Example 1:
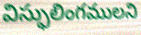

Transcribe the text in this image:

విస్ఫులింగములని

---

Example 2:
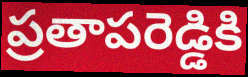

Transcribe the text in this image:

ప్రతాపరెడ్డికి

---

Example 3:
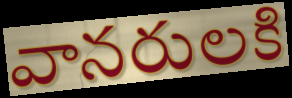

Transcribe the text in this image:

వానరులకి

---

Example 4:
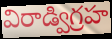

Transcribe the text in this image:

విరాడ్విగ్రహ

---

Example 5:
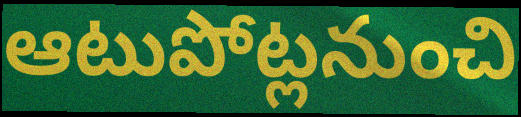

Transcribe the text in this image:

ఆటుపోట్లనుంచి